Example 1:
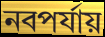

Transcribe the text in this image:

নবপর্যায়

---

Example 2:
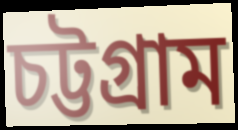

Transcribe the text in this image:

চট্টগ্রাম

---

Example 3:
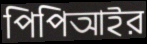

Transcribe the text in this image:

পিপিআইর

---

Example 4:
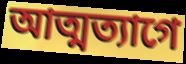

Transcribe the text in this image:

আত্মত্যাগে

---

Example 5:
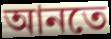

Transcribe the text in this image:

আনতে